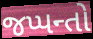
જપ્પન્તો